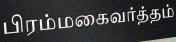
பிரம்மகைவர்த்தம்